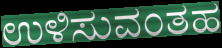
ಉಳಿಸುವಂತಹ